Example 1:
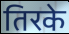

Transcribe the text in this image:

तिरके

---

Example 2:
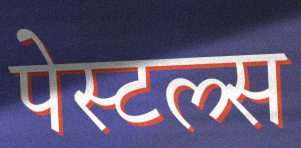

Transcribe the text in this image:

पेस्टल्स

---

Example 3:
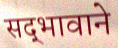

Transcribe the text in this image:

सद्‌भावाने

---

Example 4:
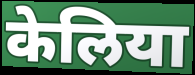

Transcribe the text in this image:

केलिया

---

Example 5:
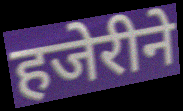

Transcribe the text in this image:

हजेरीने